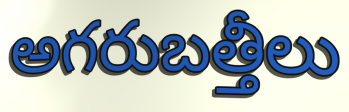
అగరుబత్తీలు